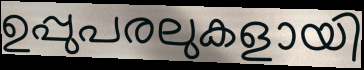
ഉപ്പുപരലുകളായി